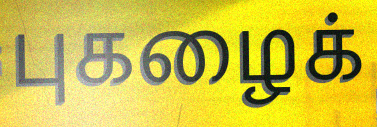
புகழைக்